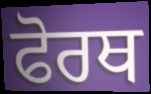
ਫੋਰਥ